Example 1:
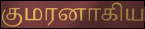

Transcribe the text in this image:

குமரனாகிய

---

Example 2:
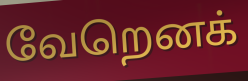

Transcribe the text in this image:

வேறெனக்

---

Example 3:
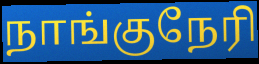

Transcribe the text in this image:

நாங்குநேரி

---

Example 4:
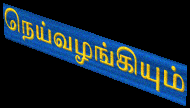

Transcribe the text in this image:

நெய்வழங்கியும்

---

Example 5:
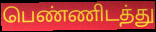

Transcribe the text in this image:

பெண்ணிடத்து